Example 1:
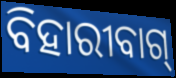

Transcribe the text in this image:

ବିହାରୀବାଗ୍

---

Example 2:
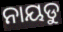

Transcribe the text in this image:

ନାୟଡୁ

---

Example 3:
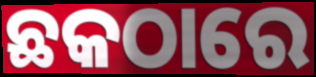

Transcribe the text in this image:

ଛକଠାରେ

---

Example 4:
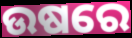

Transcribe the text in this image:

ଉଷରେ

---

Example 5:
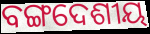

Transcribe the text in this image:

ବଙ୍ଗଦେଶୀୟ